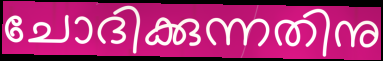
ചോദിക്കുന്നതിനു